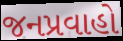
જનપ્રવાહો